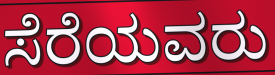
ಸೆರೆಯವರು